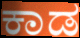
ಕಾಡ